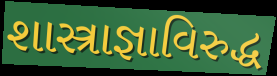
શાસ્ત્રાજ્ઞાવિરુદ્ધ